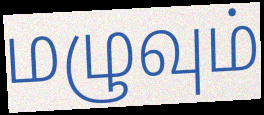
மழுவும்